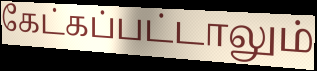
கேட்கப்பட்டாலும்